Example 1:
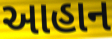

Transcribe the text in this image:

આહાન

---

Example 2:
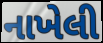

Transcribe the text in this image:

નાખેલી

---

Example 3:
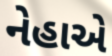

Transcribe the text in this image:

નેહાએ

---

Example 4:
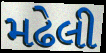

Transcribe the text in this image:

મઢેલી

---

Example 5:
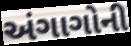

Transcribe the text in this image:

અંગાગોની